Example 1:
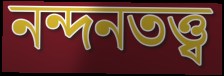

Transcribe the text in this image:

নন্দনতত্ত্ব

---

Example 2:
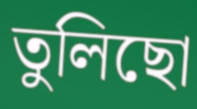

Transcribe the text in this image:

তুলিছো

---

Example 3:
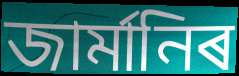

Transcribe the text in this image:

জাৰ্মানিৰ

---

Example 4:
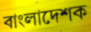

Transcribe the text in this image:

বাংলাদেশক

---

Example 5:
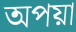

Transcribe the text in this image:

অপয়া